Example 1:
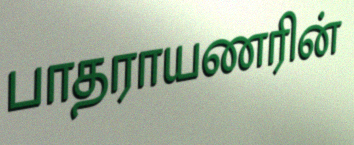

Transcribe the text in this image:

பாதராயணரின்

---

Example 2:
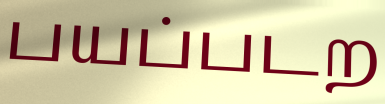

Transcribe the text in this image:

பயப்படற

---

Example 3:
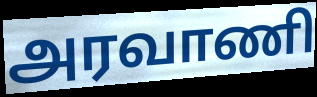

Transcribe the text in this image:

அரவாணி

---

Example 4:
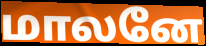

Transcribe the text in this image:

மாலனே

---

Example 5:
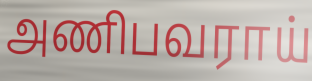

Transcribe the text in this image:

அணிபவராய்